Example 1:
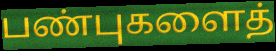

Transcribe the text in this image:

பண்புகளைத்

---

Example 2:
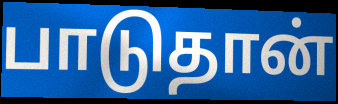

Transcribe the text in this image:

பாடுதான்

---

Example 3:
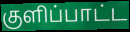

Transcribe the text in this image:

குளிப்பாட்ட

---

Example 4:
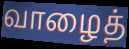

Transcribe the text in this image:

வாழைத்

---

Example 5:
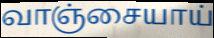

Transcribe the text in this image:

வாஞ்சையாய்